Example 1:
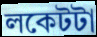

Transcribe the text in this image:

লকেটটা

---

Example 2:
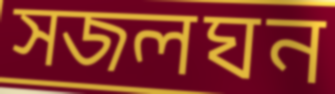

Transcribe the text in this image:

সজলঘন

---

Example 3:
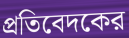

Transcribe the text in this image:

প্রতিবেদকের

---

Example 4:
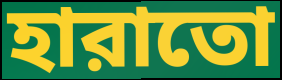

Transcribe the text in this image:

হারাতো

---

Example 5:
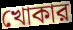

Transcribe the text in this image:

খোকার